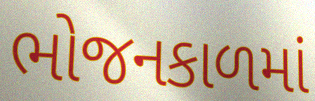
ભોજનકાળમાં